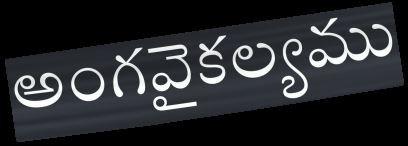
అంగవైకల్యము